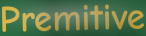
Premitive